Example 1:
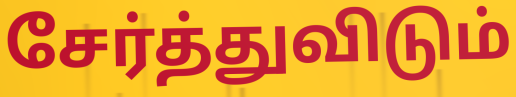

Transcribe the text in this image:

சேர்த்துவிடும்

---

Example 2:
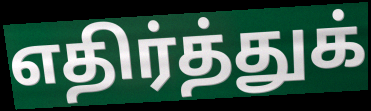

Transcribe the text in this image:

எதிர்த்துக்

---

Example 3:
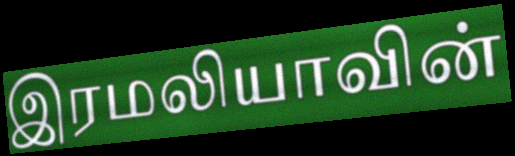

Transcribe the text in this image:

இரமலியாவின்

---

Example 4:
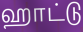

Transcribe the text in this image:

ஹாட்டு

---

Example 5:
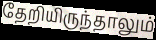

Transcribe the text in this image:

தேறியிருந்தாலும்